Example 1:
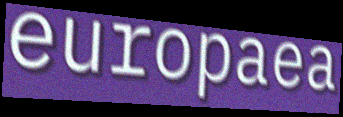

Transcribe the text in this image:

europaea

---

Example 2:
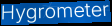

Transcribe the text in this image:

Hygrometer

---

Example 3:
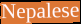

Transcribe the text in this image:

Nepalese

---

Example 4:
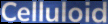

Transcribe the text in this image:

Celluloid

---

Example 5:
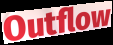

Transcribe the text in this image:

Outflow